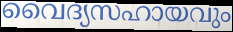
വൈദ്യസഹായവും